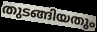
തുടങ്ങിയതും